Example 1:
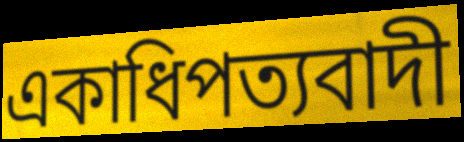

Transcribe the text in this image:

একাধিপত্যবাদী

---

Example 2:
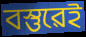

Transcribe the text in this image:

বস্তুৱেই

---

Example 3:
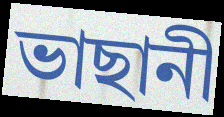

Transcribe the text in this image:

ভাছানী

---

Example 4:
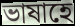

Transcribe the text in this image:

ভাষাহে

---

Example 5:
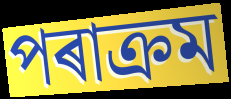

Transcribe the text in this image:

পৰাক্ৰম